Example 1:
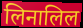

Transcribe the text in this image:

लिनालिल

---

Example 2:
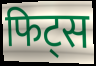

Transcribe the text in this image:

फिट्स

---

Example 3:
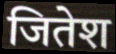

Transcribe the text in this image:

जितेश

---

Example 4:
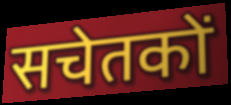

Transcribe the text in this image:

सचेतकों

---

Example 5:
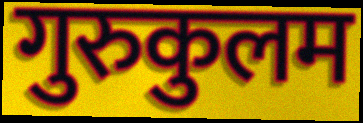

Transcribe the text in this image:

गुरुकुलम